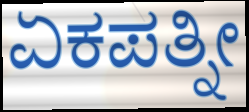
ಏಕಪತ್ನೀ